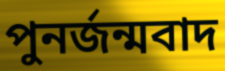
পুনর্জন্মবাদ